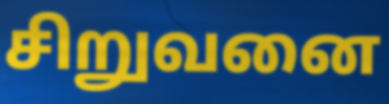
சிறுவனை